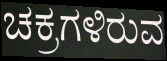
ಚಕ್ರಗಳಿರುವ